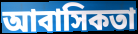
আবাসিকতা